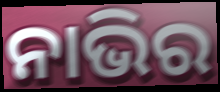
ନାଭିର